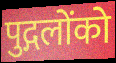
पुद्गलोंको